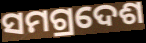
ସମଗ୍ରଦେଶ